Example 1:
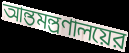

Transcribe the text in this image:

আন্তমন্ত্রণালয়ের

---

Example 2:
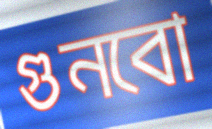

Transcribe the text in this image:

গুনবো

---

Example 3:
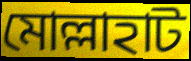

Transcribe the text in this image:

মোল্লাহাট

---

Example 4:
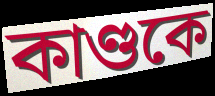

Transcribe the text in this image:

কাণ্ডকে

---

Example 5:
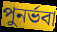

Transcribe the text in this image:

পুনর্ভবা